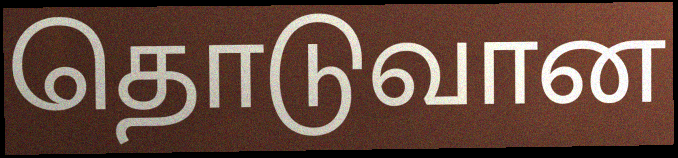
தொடுவான